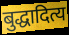
बुद्धादित्य